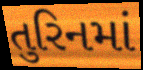
તુરિનમાં